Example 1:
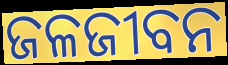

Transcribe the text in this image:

ଜଳଜୀବନ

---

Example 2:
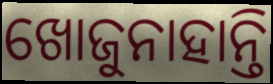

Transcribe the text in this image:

ଖୋଜୁନାହାନ୍ତି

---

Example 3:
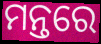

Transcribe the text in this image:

ମନ୍ତରେ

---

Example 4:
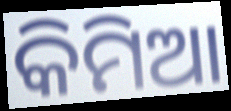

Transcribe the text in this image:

କିମିଆ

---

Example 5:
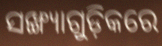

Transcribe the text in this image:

ସଙ୍ଖ୍ୟାଗୁଡ଼ିକରେ